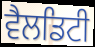
ਵੈਲਡਿਟੀ